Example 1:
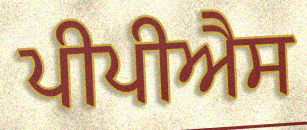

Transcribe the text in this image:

ਪੀਪੀਐਸ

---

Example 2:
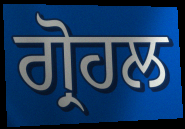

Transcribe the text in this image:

ਗ੍ਰੋਹਲ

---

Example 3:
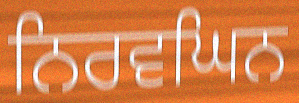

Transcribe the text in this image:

ਨਿਰਵਘਿਨ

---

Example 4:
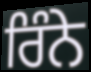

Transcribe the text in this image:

ਰਿੰਨੇ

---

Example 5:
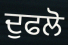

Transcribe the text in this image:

ਦੁਫਲੋ